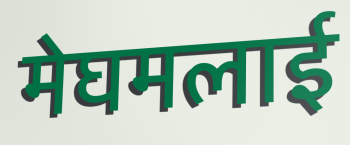
मेघमलाई